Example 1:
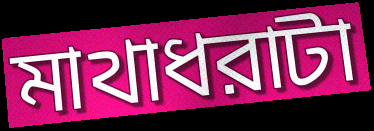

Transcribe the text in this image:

মাথাধরাটা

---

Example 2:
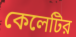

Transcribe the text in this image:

কেলেটির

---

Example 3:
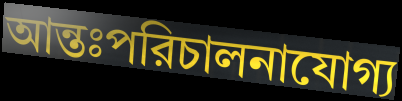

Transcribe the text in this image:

আন্তঃপরিচালনাযোগ্য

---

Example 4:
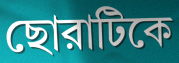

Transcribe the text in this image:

ছোরাটিকে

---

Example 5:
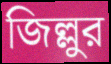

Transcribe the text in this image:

জিল্লুর